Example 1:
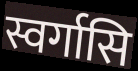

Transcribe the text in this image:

स्वर्गासि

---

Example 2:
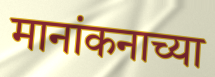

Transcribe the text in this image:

मानांकनाच्या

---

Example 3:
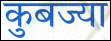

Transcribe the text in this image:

कुबज्या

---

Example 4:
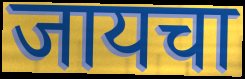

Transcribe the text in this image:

जायचा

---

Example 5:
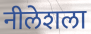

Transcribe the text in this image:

नीलेशला